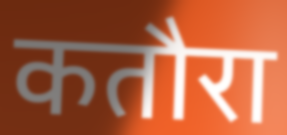
कतौरा